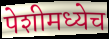
पेशीमध्येच